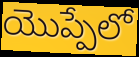
యొప్పేలో